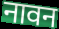
नावन